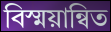
বিস্ময়ান্বিত